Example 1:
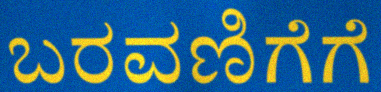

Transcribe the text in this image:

ಬರವಣಿಗೆಗೆ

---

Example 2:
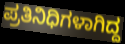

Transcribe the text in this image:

ಪ್ರತಿನಿಧಿಗಳಾಗಿದ್ದ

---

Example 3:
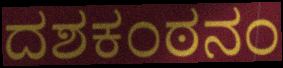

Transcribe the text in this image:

ದಶಕಂಠನಂ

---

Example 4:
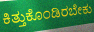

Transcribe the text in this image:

ಕಿತ್ತುಕೊಂಡಿರಬೇಕು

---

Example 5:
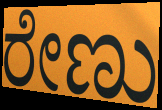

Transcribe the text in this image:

ರೇಣು